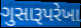
ગુસારૂપરેખા